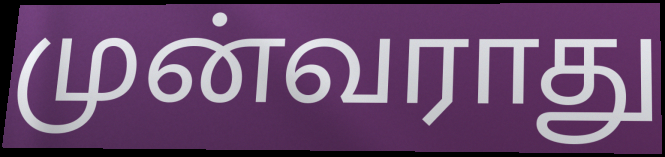
முன்வராது